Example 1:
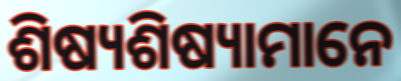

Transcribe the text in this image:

ଶିଷ୍ୟଶିଷ୍ୟାମାନେ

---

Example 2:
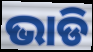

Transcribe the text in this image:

ଭାଡି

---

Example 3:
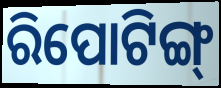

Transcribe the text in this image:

ରିପୋଟିଙ୍ଗ୍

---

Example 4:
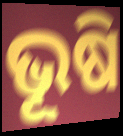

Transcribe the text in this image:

ଭୂଷି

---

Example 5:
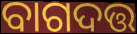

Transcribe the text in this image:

ବାଗଦତ୍ତ